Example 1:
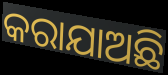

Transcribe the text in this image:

କରାଯାଅଛି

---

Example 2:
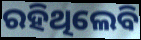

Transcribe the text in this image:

ରହିଥିଲେବି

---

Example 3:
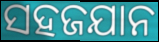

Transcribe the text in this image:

ସହଜଯାନ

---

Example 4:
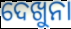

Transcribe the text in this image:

ଦେଖୁନା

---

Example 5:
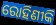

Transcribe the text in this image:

ରୋହିଣୀକି